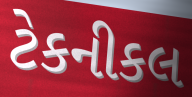
ટેકનીકલ